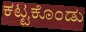
ಕಟ್ಟಕೊಂಡು